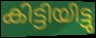
കിട്ടിയിട്ടു